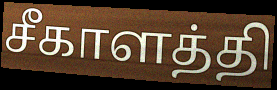
சீகாளத்தி